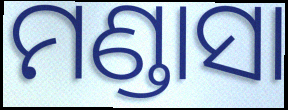
ମଣ୍ଡାସା